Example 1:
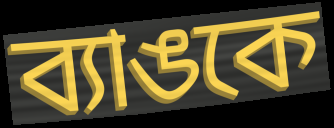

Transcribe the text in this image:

ব্যাঙকে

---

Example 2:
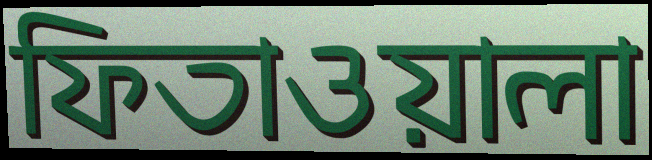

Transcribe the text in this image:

ফিতাওয়ালা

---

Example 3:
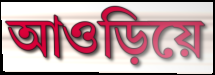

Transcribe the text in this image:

আওড়িয়ে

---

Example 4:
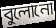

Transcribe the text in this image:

বুলোনো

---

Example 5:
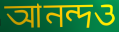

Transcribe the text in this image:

আনন্দও